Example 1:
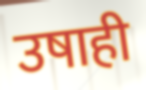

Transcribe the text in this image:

उषाही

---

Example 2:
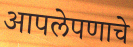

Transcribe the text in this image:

आपलेपणाचे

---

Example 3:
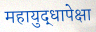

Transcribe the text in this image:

महायुद्धापेक्षा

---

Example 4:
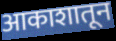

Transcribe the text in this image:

आकाशातून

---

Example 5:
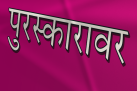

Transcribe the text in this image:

पुरस्कारावर